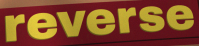
reverse